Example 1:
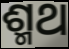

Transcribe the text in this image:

ଶ୍ମଥ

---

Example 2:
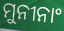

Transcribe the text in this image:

ମୁନୀନାଂ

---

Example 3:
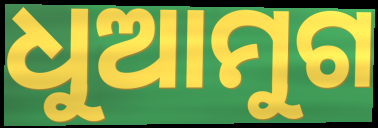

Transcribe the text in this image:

ଧୁଆମୁଗ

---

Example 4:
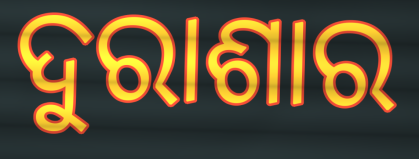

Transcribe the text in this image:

ଦୁରାଶାର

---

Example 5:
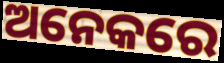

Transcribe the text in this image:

ଅନେକରେ